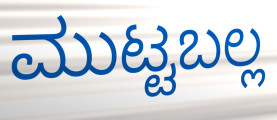
ಮುಟ್ಟಬಲ್ಲ